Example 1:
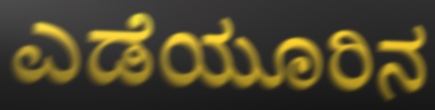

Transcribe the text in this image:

ಎಡೆಯೂರಿನ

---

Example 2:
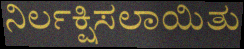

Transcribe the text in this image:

ನಿರ್ಲಕ್ಷಿಸಲಾಯಿತು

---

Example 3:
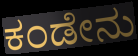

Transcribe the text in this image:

ಕಂಡೇನು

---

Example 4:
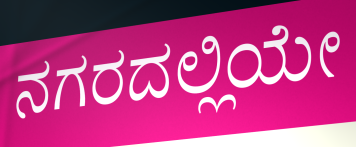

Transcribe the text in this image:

ನಗರದಲ್ಲಿಯೇ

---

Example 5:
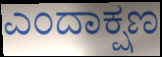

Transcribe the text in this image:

ಎಂದಾಕ್ಷಣ